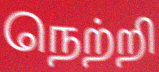
நெற்றி